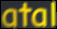
atal